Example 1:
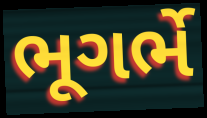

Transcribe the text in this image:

ભૂગર્ભે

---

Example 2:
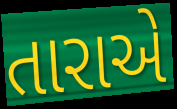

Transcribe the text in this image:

તારાએ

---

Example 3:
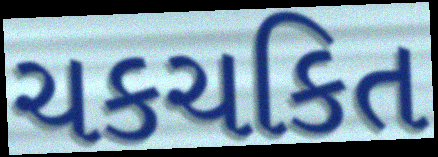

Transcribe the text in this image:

ચકચકિત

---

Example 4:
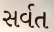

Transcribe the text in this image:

સર્વત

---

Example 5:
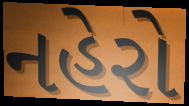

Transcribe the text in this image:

નહેરો